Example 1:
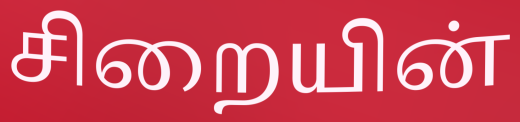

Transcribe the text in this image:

சிறையின்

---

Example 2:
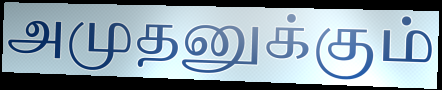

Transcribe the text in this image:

அமுதனுக்கும்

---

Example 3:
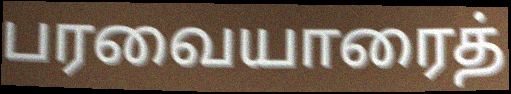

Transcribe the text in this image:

பரவையாரைத்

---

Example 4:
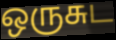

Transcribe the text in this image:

ஒருசுட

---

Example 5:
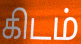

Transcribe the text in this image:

கிடம்